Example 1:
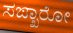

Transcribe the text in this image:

ಸಙ್ಖಾರೋ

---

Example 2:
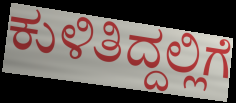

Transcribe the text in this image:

ಕುಳಿತಿದ್ದಲ್ಲಿಗೆ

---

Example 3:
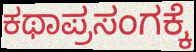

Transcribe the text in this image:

ಕಥಾಪ್ರಸಂಗಕ್ಕೆ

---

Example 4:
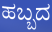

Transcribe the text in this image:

ಹಬ್ಬದ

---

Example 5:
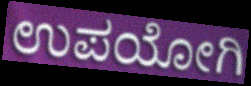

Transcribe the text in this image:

ಉಪಯೋಗಿ